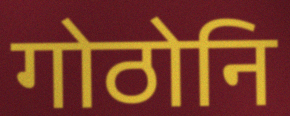
गोठोनि